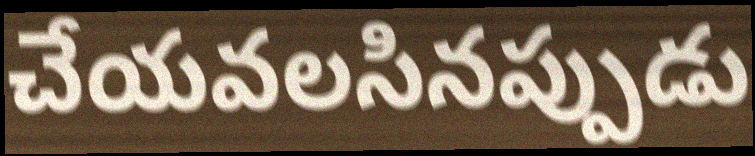
చేయవలసినప్పుడు